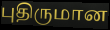
புதிருமான